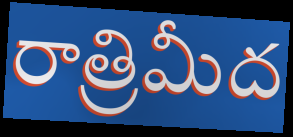
రాత్రిమీద